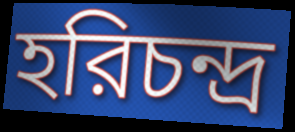
হরিচন্দ্র